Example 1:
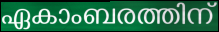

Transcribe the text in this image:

ഏകാംബരത്തിന്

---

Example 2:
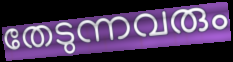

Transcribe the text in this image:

തേടുന്നവരും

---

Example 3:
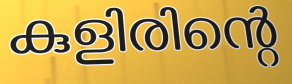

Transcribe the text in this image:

കുളിരിന്റെ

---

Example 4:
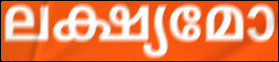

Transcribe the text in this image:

ലക്ഷ്യമോ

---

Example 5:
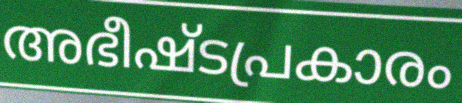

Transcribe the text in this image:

അഭീഷ്ടപ്രകാരം